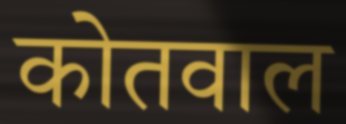
कोतवाल